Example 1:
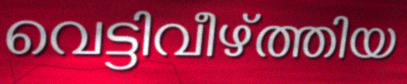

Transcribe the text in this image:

വെട്ടിവീഴ്ത്തിയ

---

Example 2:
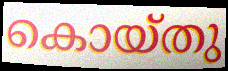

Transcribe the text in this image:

കൊയ്തു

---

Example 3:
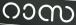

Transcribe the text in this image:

റാസ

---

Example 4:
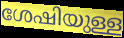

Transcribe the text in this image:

ശേഷിയുള്ള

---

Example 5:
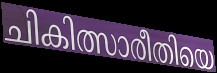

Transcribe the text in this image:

ചികിത്സാരീതിയെ